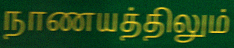
நாணயத்திலும்